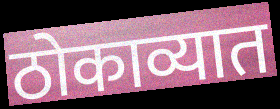
ठोकाव्यात